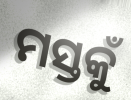
ମସ୍ତକୁଁ